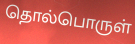
தொல்பொருள்